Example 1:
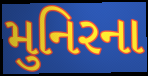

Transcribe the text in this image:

મુનિરના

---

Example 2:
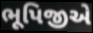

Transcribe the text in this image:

ભૂપિજીએ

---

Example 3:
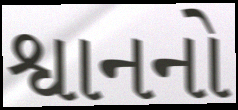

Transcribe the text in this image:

શ્વાનનો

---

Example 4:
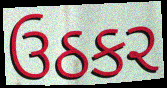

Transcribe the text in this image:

ઉઠકર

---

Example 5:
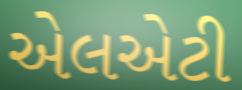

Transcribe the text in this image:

એલએટી